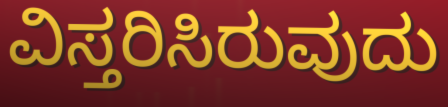
ವಿಸ್ತರಿಸಿರುವುದು